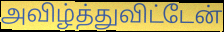
அவிழ்த்துவிட்டேன்